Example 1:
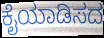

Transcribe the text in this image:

ಕೈಯಾಡಿಸದ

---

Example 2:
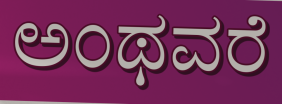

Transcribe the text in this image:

ಅಂಥವರೆ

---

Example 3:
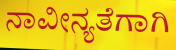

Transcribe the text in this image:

ನಾವೀನ್ಯತೆಗಾಗಿ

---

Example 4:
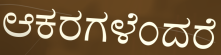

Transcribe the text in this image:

ಆಕರಗಳೆಂದರೆ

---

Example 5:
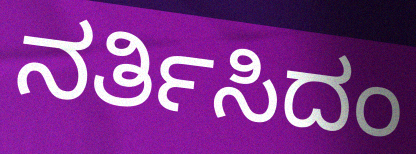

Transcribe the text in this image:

ನರ್ತಿಸಿದಂ